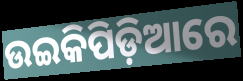
ଉଇକିପିଡ଼ିଆରେ